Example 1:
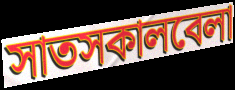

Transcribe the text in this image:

সাতসকালবেলা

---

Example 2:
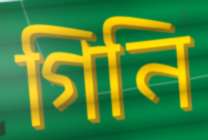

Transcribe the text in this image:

গিনি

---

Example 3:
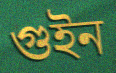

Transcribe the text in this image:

গুইন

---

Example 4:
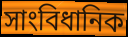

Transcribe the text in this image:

সাংবিধানিক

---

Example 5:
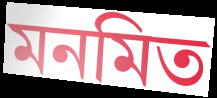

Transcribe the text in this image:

মনমিত